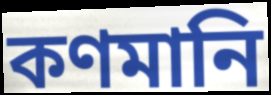
কণমানি